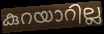
കുറയാറില്ല